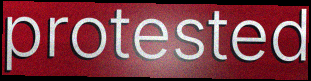
protested